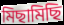
মিছামিছি